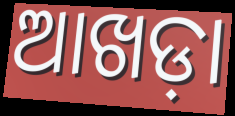
ଆଖଡ଼ା